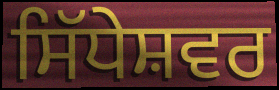
ਸਿੱਧੇਸ਼ਵਰ